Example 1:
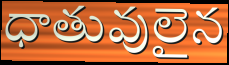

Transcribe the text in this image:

ధాతువులైన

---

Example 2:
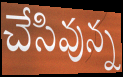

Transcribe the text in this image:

చేసివున్న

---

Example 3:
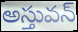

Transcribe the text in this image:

అస్తువన్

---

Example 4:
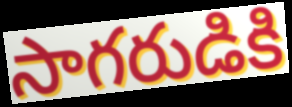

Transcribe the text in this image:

సాగరుడికి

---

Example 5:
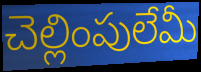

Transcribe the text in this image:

చెల్లింపులేమీ